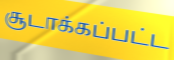
சூடாக்கப்பட்ட